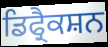
ਡਿਫ੍ਰੈਕਸ਼ਨ